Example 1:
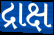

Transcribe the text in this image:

દ્રાક્ષ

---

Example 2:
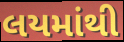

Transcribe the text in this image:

લયમાંથી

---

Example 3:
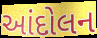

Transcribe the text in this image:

આંદોલન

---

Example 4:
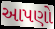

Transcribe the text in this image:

આપણો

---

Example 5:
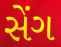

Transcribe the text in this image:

સેંગ